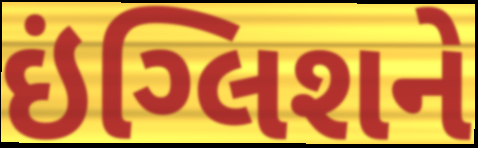
ઇંગ્લિશને